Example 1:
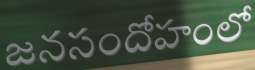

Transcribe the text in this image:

జనసందోహంలో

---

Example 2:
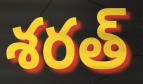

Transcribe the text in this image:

శరత్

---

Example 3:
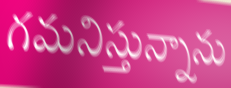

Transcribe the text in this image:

గమనిస్తున్నాను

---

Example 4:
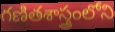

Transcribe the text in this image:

గణితశాస్త్రంలోని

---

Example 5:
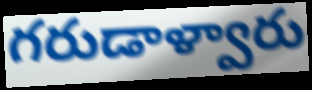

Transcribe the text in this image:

గరుడాళ్వారు